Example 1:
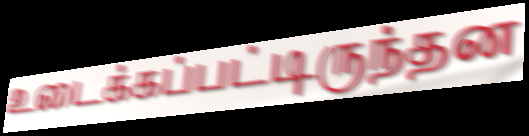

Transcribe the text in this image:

உடைக்கப்பட்டிருந்தன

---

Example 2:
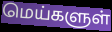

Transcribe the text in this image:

மெய்களுள்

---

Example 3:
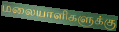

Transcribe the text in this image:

மலையாளிகளுக்கு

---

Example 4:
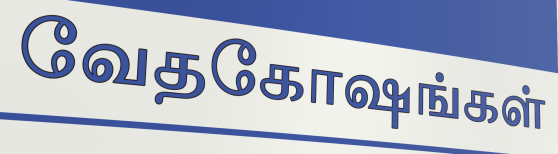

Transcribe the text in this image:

வேதகோஷங்கள்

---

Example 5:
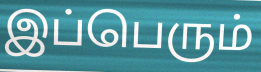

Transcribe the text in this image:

இப்பெரும்